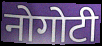
नोगोटी